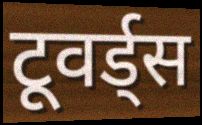
टूवर्ड्स